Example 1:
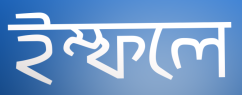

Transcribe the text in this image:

ইম্ফলে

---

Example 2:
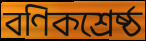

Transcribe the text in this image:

বণিকশ্রেষ্ঠ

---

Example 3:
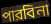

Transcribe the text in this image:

পারবিনা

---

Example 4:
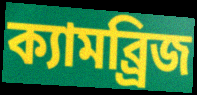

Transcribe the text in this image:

ক্যামব্র্রিজ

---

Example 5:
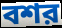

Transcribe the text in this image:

বশর